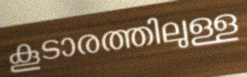
കൂടാരത്തിലുള്ള